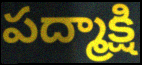
పద్మాక్షి